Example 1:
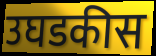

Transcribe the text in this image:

उघडकीस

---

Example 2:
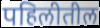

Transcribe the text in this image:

पहिलीतील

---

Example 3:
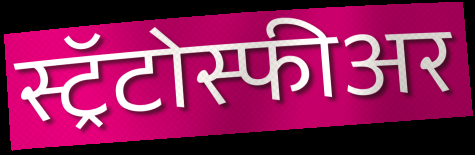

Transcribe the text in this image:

स्ट्रॅटोस्फीअर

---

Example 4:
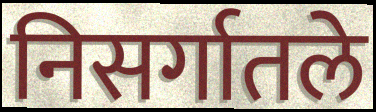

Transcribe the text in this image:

निसर्गातले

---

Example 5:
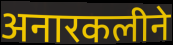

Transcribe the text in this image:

अनारकलीने